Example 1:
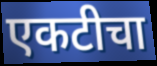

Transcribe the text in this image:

एकटीचा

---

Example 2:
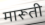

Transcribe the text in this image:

मारूती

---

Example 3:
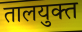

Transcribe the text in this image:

तालयुक्त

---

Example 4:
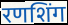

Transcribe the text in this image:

रणशिंग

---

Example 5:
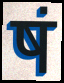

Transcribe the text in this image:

षं